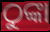
ଠୁଙ୍କା